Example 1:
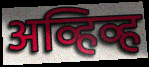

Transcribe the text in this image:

अव्हिव्ह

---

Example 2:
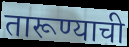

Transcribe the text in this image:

तारूण्याची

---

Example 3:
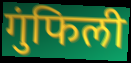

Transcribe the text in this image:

गुंफिली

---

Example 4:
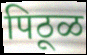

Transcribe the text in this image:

पिठूळ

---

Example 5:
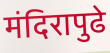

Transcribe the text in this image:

मंदिरापुढे